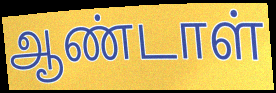
ஆண்டாள்